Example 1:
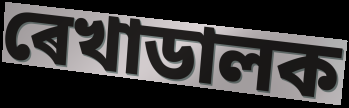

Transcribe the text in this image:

ৰেখাডালক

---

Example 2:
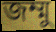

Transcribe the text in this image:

জম্মু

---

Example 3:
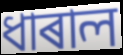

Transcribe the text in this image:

ধাৰাল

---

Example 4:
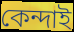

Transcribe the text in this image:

কেন্দাই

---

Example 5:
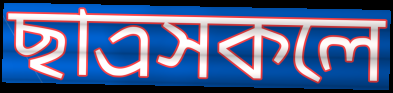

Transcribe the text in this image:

ছাত্ৰসকলে